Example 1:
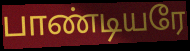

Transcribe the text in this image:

பாண்டியரே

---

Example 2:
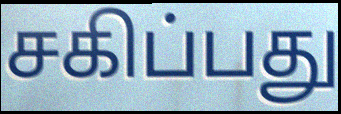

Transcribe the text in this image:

சகிப்பது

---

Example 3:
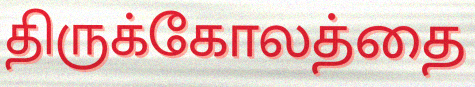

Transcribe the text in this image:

திருக்கோலத்தை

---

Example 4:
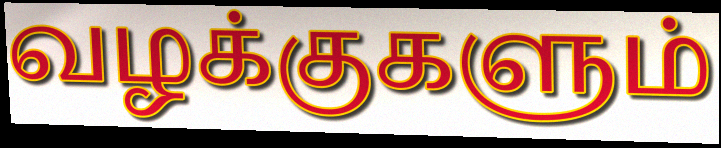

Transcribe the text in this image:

வழக்குகளும்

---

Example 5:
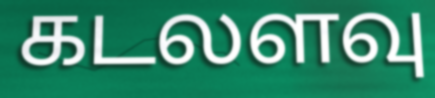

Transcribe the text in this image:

கடலளவு